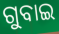
ଗୁବାଇ